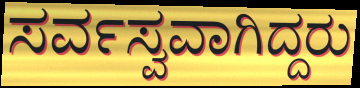
ಸರ್ವಸ್ವವಾಗಿದ್ದರು